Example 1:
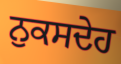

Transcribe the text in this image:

ਨੁਕਸਦੇਹ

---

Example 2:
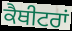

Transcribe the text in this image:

ਕੈਥੀਟਰਾਂ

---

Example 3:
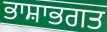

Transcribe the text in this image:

ਭਾਸ਼ਾਭਗਤ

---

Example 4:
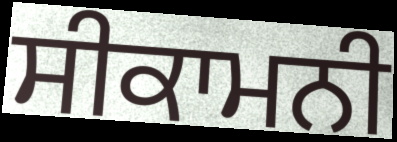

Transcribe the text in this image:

ਸੀਕਾਮਨੀ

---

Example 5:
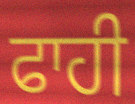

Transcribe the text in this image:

ਫਾਹੀ